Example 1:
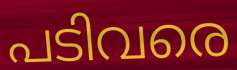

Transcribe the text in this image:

പടിവരെ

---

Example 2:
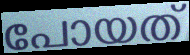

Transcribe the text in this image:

പോയത്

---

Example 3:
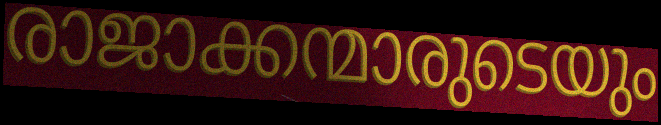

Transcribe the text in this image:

രാജാക്കന്മാരുടെയും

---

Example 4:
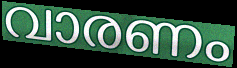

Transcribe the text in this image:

വാരണം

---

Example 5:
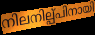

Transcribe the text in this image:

നിലനില്പ്പിനായി